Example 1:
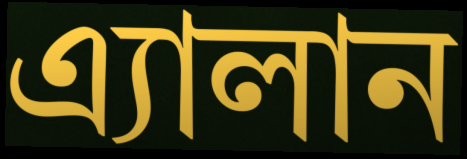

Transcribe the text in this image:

এ্যালান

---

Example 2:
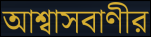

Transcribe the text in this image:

আশ্বাসবাণীর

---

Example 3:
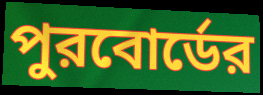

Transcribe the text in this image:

পুরবোর্ডের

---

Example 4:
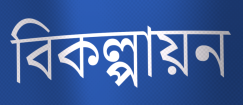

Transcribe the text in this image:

বিকল্পায়ন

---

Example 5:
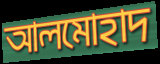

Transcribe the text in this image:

আলমোহাদ